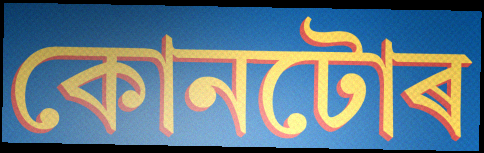
কোনটোৰ